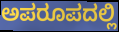
ಅಪರೂಪದಲ್ಲಿ